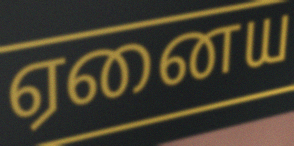
ஏனைய